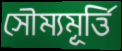
সৌম্যমূর্ত্তি